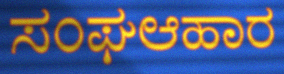
ಸಂಘಆಹಾರ